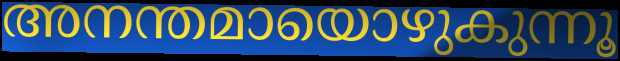
അനന്തമായൊഴുകുന്നൂ